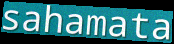
sahamata